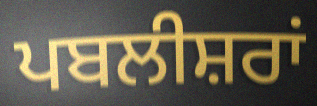
ਪਬਲੀਸ਼ਰਾਂ